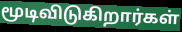
மூடிவிடுகிறார்கள்